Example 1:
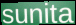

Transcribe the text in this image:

sunita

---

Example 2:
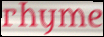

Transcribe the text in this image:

rhyme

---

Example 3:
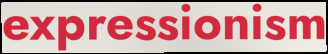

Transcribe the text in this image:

expressionism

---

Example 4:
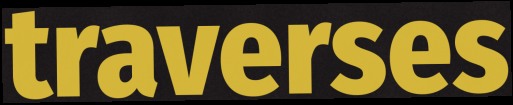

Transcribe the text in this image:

traverses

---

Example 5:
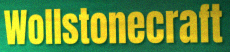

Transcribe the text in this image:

Wollstonecraft